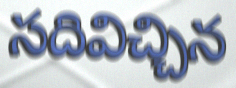
సదివిచ్చిన